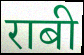
राबी